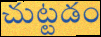
చుట్టడం